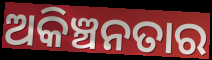
ଅକିଞ୍ଚନତାର